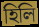
হিলি